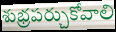
శుభ్రపర్చుకోవాలి